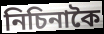
নিচিনাকৈ